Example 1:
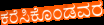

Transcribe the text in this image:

ಕರೆಸಿಕೊಂಡವರ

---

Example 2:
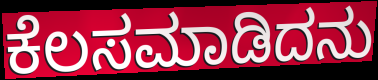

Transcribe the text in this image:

ಕೆಲಸಮಾಡಿದನು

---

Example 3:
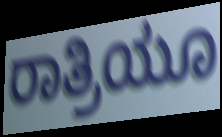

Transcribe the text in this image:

ರಾತ್ರಿಯೂ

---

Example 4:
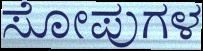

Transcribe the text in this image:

ಸೋಪುಗಳ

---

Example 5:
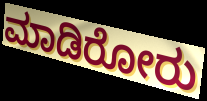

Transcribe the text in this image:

ಮಾಡಿರೋರು